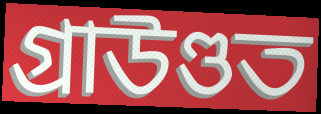
গ্ৰাউণ্ডত